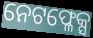
ନେଟଫ୍ଳେକ୍ସ